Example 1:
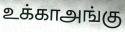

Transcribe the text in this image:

உக்காஅங்கு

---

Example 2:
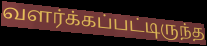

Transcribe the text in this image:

வளர்க்கப்பட்டிருந்த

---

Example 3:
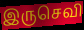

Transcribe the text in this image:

இருசெவி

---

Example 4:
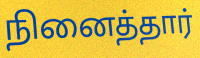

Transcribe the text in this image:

நினைத்தார்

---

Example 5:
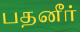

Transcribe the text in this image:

பதனீர்